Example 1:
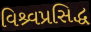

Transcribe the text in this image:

વિશ્ર્વપ્રસિદ્ધ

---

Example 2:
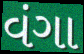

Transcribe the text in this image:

વંગા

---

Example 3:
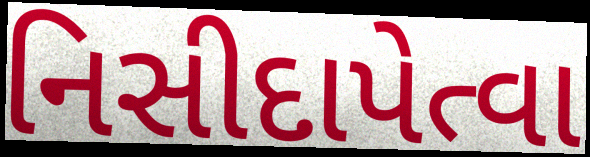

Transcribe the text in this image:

નિસીદાપેત્વા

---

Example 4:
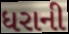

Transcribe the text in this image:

ધરાની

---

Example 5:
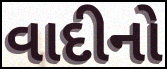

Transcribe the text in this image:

વાદીનો